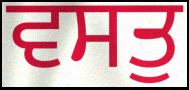
ਵਸਤੁ